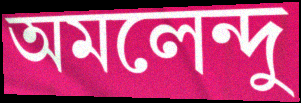
অমলেন্দু